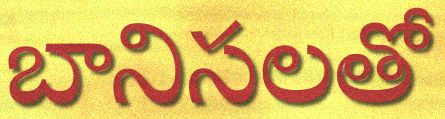
బానిసలతో